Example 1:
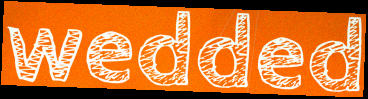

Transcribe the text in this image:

wedded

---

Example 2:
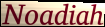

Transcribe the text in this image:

Noadiah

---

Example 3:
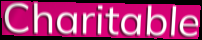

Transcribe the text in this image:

Charitable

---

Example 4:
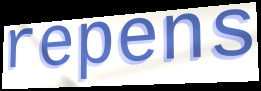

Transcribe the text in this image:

repens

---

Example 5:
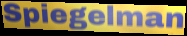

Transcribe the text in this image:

Spiegelman